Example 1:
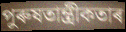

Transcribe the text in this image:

পুৰুষতান্ত্ৰীকতাৰ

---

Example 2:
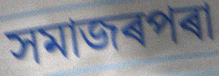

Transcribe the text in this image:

সমাজৰপৰা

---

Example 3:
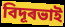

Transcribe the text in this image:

বিদূৰভাই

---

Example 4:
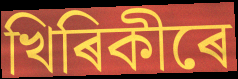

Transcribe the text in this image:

খিৰিকীৰে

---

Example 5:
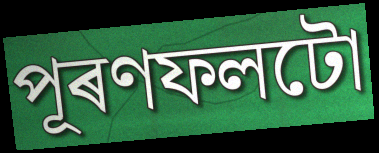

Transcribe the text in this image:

পূৰণফলটো